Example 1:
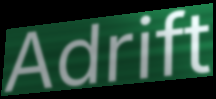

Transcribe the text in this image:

Adrift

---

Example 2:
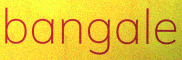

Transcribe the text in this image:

bangale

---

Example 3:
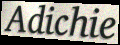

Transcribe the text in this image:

Adichie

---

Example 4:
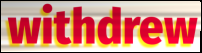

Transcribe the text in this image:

withdrew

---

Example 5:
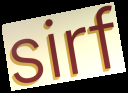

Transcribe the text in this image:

sirf